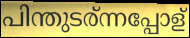
പിന്തുടര്ന്നപ്പോള്